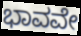
ಭಾವವೇ